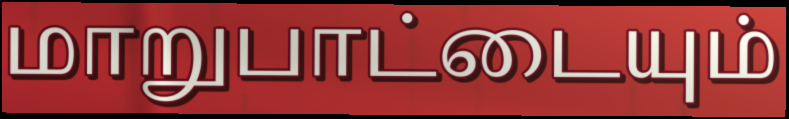
மாறுபாட்டையும்